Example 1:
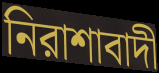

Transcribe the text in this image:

নিরাশাবাদী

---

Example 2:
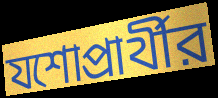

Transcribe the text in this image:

যশোপ্রার্থীর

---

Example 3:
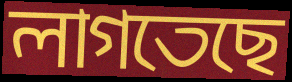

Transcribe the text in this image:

লাগতেছে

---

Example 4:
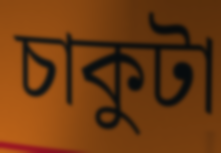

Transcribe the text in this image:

চাকুটা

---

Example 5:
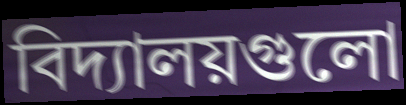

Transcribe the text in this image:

বিদ্যালয়গুলো